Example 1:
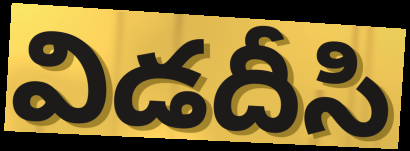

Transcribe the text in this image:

విడదీసి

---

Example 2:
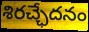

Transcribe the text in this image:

శిరచ్ఛేదనం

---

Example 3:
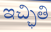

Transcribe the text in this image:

ఇచ్ఛితి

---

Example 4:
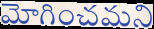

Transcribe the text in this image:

మోగించమని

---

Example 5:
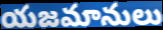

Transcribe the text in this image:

యజమానులు